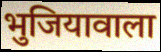
भुजियावाला